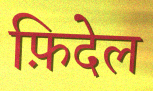
फ़िदेल